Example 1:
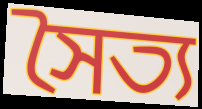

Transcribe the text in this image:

সৈত্য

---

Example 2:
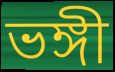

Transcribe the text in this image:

ভঙ্গী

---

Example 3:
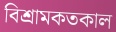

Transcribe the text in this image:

বিশ্রামকতকাল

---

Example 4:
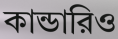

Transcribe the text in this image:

কান্ডারিও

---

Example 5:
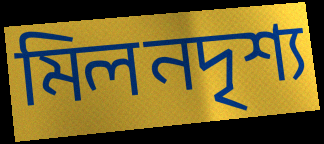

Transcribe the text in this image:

মিলনদৃশ্য